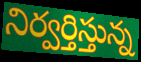
నిర్వర్తిస్తున్న